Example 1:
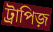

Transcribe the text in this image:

ট্রাপিজ়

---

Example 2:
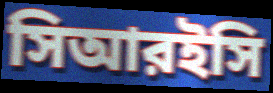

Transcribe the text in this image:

সিআরইসি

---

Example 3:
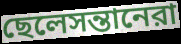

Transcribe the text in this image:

ছেলেসন্তানেরা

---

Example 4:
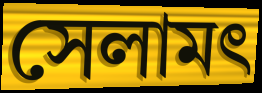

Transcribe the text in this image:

সেলামৎ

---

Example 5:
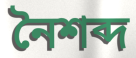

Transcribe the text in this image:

নৈশব্দ